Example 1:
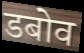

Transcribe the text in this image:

डबोव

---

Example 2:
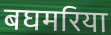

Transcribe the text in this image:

बघमरिया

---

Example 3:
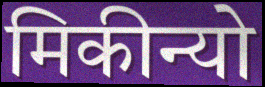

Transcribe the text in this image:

मिकीन्यो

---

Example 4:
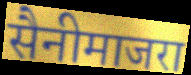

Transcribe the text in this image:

सैनीमाजरा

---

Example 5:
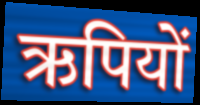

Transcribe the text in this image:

ऋपियों